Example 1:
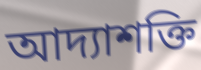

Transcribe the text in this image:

আদ্যাশক্তি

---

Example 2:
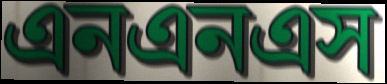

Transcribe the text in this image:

এনএনএস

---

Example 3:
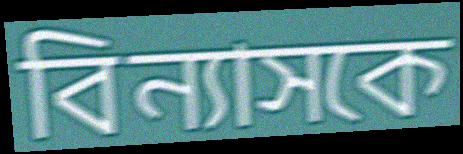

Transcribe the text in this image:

বিন্যাসকে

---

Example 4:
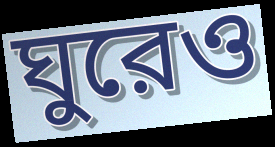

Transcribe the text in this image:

ঘুরেও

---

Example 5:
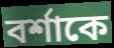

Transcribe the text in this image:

বর্শাকে